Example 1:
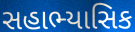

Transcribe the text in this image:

સહાભ્યાસિક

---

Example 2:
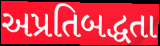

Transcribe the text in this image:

અપ્રતિબદ્ધતા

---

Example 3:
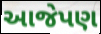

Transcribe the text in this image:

આજેપણ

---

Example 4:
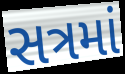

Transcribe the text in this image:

સત્રમાં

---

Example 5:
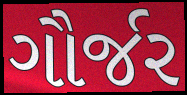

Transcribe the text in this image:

ગૌર્જર